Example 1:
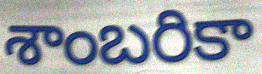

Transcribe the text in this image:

శాంబరికా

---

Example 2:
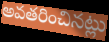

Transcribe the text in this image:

అవతరించినట్లు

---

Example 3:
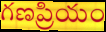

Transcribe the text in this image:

గణప్రియం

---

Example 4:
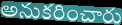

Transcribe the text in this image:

అనుకరించారు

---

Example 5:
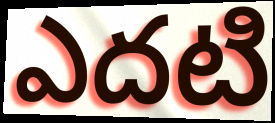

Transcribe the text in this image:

ఎదటి